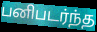
பனிபடர்ந்த